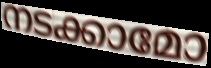
നടക്കാമോ